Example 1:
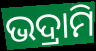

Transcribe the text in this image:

ଭଦ୍ରାମି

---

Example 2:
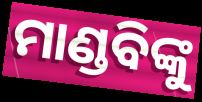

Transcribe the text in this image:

ମାଣ୍ଡବିଙ୍କୁ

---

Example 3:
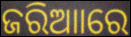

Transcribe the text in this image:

ଜରିଆାରେ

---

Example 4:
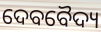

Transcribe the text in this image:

ଦେବବୈଦ୍ୟ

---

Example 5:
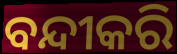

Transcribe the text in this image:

ବନ୍ଦୀକରି